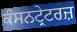
ਕੰਸਨਟ੍ਰੇਟਰਜ਼